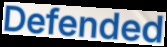
Defended